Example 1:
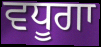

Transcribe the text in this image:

ਵਧੂਗਾ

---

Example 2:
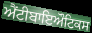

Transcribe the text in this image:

ਐਂਟੀਬਾਇਔਟਿਕਸ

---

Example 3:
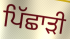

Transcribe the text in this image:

ਪਿੱਛਾੜੀ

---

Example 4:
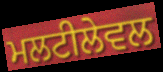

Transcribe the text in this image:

ਮਲਟੀਲੇਵਲ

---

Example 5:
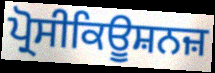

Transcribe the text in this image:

ਪ੍ਰੋਸੀਕਿਊਸ਼ਨਜ਼